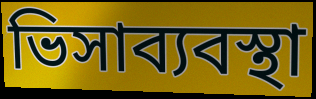
ভিসাব্যবস্থা